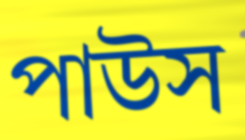
পাউস